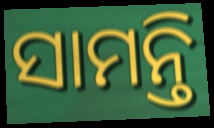
ସାମନ୍ତି